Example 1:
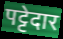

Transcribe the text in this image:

पट्टेदार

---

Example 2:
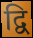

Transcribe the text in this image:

द्वि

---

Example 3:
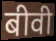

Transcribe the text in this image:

बीवी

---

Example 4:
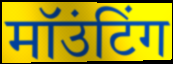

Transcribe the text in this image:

मॉउंटिंग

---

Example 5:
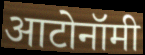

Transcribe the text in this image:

आटोनॉमी